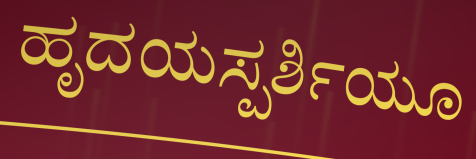
ಹೃದಯಸ್ಪರ್ಶಿಯೂ